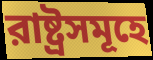
রাষ্ট্রসমূহে